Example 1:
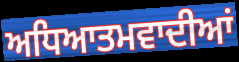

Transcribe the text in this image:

ਅਧਿਆਤਮਵਾਦੀਆਂ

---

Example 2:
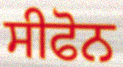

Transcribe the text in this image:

ਸੀਫੋਨ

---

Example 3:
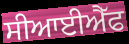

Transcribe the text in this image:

ਸੀਆਈਐੱਫ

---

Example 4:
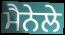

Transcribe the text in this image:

ਮੈਨੇਲੇ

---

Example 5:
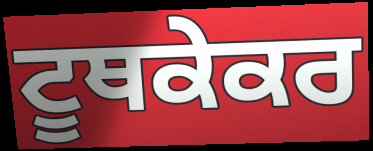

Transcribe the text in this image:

ਟੂਥਕੇਕਰ